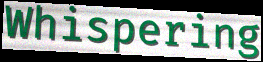
Whispering